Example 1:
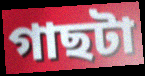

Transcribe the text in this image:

গাছটা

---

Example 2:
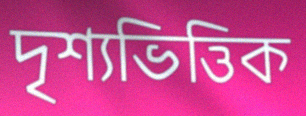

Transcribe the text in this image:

দৃশ্যভিত্তিক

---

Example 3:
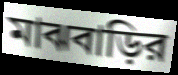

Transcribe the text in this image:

মাঝবাড়ির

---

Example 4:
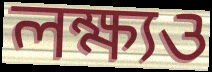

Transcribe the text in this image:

লক্ষ্যও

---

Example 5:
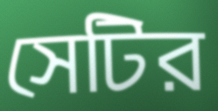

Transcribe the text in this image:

সেটির